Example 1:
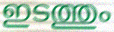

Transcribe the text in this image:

ഇടത്തും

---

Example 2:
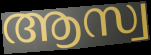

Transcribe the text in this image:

ആസ്വ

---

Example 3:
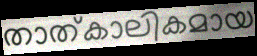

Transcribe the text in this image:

താത്കാലികമായ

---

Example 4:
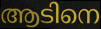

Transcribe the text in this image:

ആടിനെ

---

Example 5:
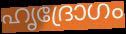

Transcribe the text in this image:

ഹൃദ്രോഗം